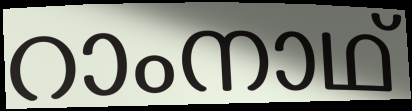
റാംനാഥ്